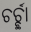
ଚର୍ଚ୍ଛା